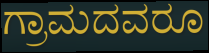
ಗ್ರಾಮದವರೂ